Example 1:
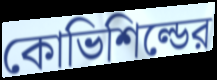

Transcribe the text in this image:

কোভিশিল্ডের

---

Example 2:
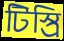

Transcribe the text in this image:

টিস্ত্রি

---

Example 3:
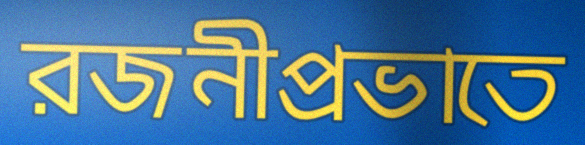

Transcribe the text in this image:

রজনীপ্রভাতে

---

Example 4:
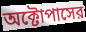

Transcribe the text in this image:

অক্টোপাসের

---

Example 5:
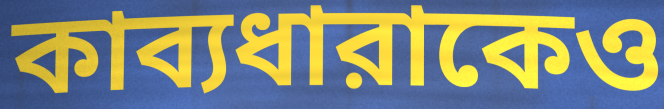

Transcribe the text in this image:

কাব্যধারাকেও